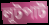
লূটপাট